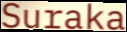
Suraka